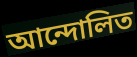
আন্দোলিত